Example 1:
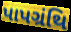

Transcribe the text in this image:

પાપગ્રંથિ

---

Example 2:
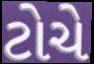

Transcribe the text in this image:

ટોચે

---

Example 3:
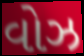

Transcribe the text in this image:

વોઝ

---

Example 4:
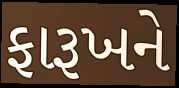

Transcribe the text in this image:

ફારૂખને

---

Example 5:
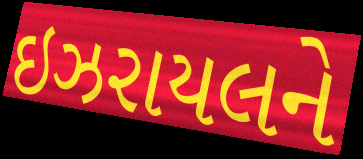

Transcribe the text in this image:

ઇઝરાયલને